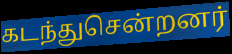
கடந்துசென்றனர்